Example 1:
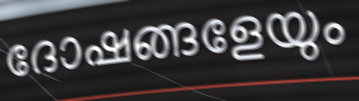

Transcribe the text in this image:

ദോഷങ്ങളേയും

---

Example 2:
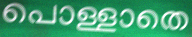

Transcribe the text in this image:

പൊള്ളാതെ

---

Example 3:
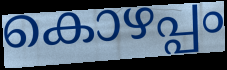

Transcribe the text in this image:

കൊഴപ്പം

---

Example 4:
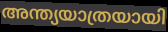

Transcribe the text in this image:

അന്ത്യയാത്രയായി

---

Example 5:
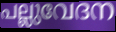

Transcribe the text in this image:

പല്ലുവേദന